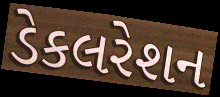
ડેકલરેશન